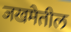
जखमेतील